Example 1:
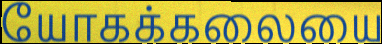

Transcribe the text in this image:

யோகக்கலையை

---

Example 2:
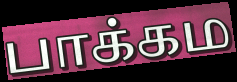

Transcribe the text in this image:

பாக்கம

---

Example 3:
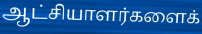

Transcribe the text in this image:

ஆட்சியாளர்களைக்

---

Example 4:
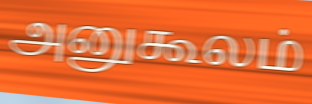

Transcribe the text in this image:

அனுகூலம்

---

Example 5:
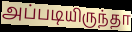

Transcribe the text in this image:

அப்படியிருந்தா